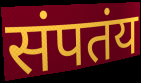
संपतंय